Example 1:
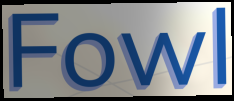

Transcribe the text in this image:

Fowl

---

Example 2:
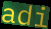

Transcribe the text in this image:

adi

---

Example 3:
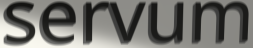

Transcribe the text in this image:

servum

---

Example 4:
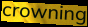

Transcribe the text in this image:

crowning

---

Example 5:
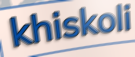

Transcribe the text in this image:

khiskoli